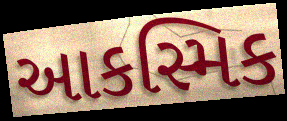
આકસ્મિક